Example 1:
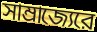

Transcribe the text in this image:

সাম্রাজ্যেরে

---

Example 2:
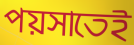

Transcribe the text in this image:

পয়সাতেই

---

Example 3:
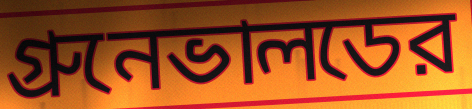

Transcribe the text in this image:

গ্রুনেভালডের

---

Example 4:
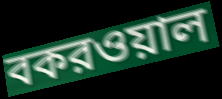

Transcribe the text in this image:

বকরওয়াল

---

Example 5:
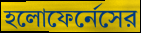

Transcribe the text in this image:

হলোফের্নেসের